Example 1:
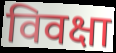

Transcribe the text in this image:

विवक्षा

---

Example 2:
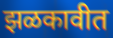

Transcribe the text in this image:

झळकावीत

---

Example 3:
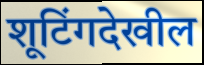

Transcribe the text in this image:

शूटिंगदेखील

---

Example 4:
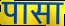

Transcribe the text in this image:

पासा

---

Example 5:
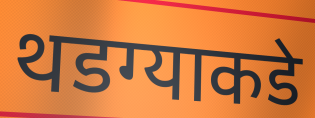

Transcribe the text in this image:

थडग्याकडे